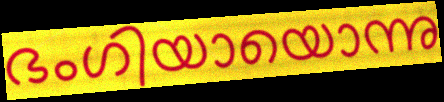
ഭംഗിയായൊന്നു